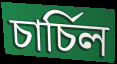
চাৰ্চিল